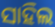
ସାହିଲ